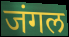
जंगल